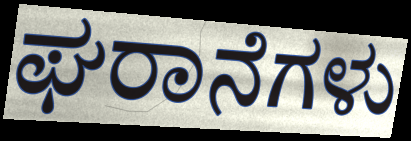
ಘರಾನೆಗಳು